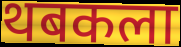
थबकला